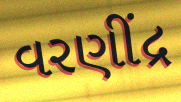
વરણીંદ્ર